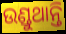
ଉଣ୍ଡୁଥାନ୍ତି